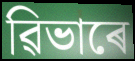
ৱিভাৰে